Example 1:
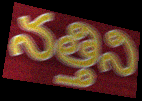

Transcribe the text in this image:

నత్తిని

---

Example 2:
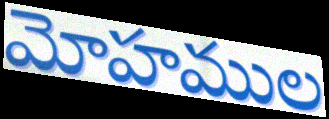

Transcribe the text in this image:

మోహముల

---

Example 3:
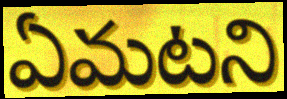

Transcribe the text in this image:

ఏమటని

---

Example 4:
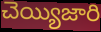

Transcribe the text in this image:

చెయ్యిజారి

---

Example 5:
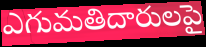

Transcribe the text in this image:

ఎగుమతిదారులపై